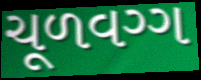
ચૂળવગ્ગ